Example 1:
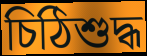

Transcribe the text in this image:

চিঠিশুদ্ধ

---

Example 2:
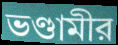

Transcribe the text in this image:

ভণ্ডামীর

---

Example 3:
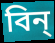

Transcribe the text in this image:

বিন্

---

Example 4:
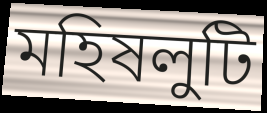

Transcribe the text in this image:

মহিষলুটি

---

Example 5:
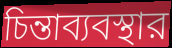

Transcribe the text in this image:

চিন্তাব্যবস্থার